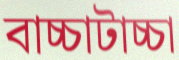
বাচ্চাটাচ্চা